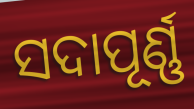
ସଦାପୂର୍ଣ୍ଣ